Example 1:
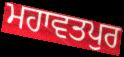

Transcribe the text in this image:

ਮਹਾਵਤਪੁਰ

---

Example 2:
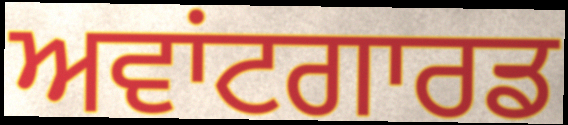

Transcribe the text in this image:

ਅਵਾਂਟਗਾਰਡ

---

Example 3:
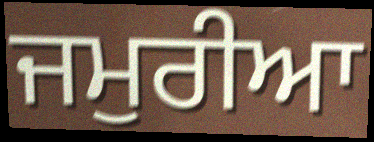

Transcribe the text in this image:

ਜਮੁਰੀਆ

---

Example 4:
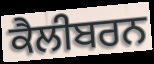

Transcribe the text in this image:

ਕੈਲੀਬਰਨ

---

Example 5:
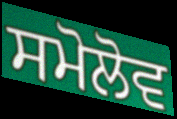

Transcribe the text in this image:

ਸਮੋਲੋਵ